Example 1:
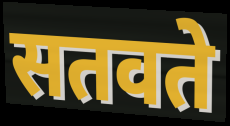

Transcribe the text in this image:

सतवते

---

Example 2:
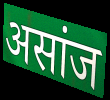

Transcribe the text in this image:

असांज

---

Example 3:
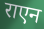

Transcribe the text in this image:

राएन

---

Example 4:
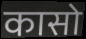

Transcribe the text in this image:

कासो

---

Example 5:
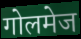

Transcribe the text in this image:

गोलमेज